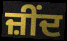
ਜ਼ੀਂਦ